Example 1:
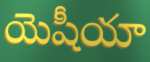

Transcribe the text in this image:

యెషీయా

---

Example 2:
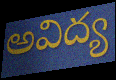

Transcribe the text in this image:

అవిద్య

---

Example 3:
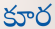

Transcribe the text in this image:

కూర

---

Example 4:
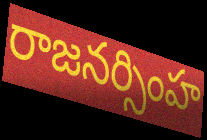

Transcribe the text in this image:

రాజనర్సింహ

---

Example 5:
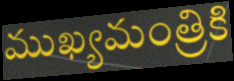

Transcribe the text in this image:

ముఖ్యమంత్రికి